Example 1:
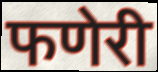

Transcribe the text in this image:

फणेरी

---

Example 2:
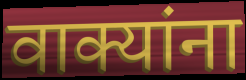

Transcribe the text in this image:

वाक्यांना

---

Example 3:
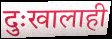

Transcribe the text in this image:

दुःखालाही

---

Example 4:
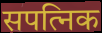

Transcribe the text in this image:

सपत्‍निक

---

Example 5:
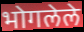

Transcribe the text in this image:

भोगलेले